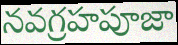
నవగ్రహపూజా